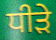
ਧੀੜੇ